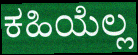
ಕಹಿಯೆಲ್ಲ